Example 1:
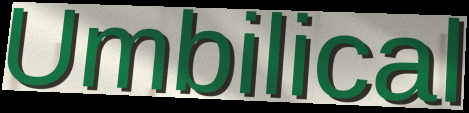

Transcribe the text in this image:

Umbilical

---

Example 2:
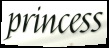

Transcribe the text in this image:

princess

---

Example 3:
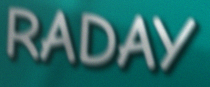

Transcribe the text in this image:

RADAY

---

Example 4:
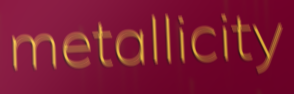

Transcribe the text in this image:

metallicity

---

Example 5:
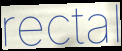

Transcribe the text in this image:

rectal